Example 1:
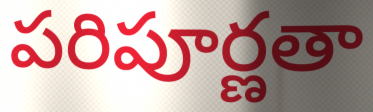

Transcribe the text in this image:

పరిపూర్ణతా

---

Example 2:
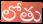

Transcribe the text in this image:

లోతు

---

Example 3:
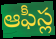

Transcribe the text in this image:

ఆఫీస్ల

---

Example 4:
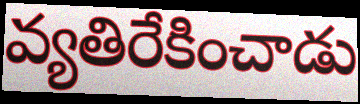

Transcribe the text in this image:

వ్యతిరేకించాడు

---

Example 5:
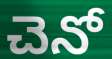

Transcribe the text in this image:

చెనో